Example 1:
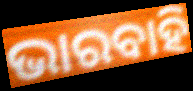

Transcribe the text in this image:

ଭାରବାହି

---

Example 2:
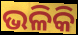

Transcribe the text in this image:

ଭଳିକି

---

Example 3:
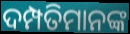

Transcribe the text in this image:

ଦମ୍ପତିମାନଙ୍କ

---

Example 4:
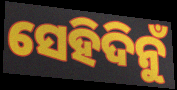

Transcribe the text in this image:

ସେହିଦିନୁଁ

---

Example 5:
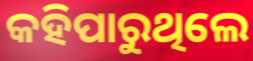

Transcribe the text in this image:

କହିପାରୁଥିଲେ